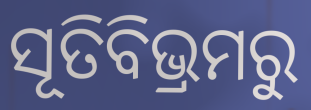
ସୂତିବିଭ୍ରମରୁ